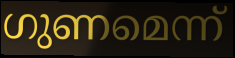
ഗുണമെന്ന്